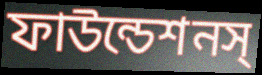
ফাউন্ডেশনস্